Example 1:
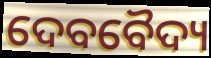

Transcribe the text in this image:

ଦେବବୈଦ୍ୟ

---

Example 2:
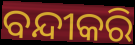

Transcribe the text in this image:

ବନ୍ଦୀକରି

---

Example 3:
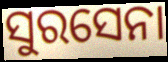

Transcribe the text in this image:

ସୁରସେନା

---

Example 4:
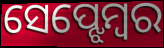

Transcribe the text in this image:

ସେପ୍ଝେମ୍ବର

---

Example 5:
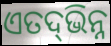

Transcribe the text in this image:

ଏତଦ୍‌ଭିନ୍ନ